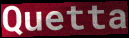
Quetta